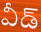
వీడ్